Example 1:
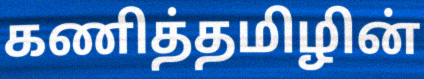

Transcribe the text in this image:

கணித்தமிழின்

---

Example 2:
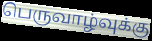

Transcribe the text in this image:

பெருவாழ்வுக்கு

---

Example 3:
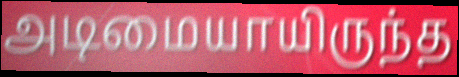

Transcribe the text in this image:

அடிமையாயிருந்த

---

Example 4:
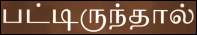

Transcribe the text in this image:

பட்டிருந்தால்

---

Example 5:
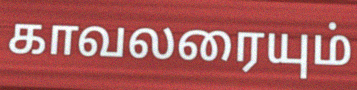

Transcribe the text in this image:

காவலரையும்